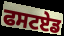
ਫਸਟਏਡ